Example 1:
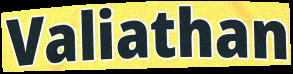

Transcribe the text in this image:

Valiathan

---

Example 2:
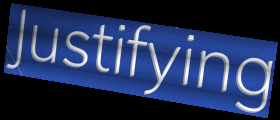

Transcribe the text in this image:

Justifying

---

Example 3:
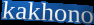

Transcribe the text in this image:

kakhono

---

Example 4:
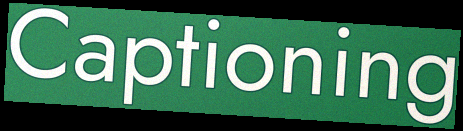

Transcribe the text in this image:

Captioning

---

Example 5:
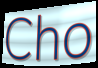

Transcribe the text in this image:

Cho